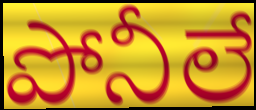
పోనీలే